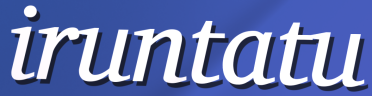
iruntatu